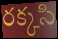
రక్కసి